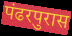
पंढरपुरास